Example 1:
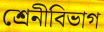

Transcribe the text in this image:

শ্রেনীবিভাগ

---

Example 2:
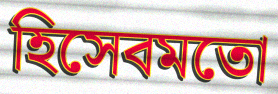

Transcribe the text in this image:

হিসেবমতো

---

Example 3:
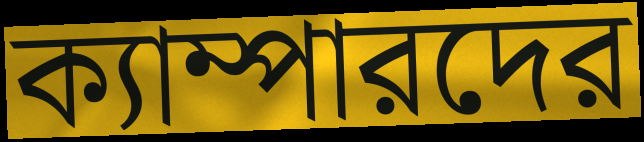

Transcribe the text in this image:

ক্যাম্পারদের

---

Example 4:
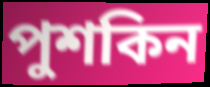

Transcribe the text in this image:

পুশকিন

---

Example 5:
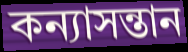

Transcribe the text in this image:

কন্যাসন্তান